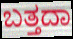
ಬತ್ತದಾ